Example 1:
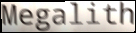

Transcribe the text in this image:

Megalith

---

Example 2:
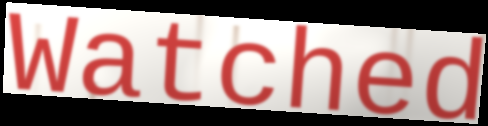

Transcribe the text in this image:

Watched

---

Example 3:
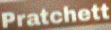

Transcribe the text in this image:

Pratchett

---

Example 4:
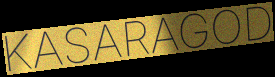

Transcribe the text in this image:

KASARAGOD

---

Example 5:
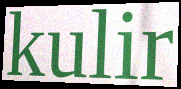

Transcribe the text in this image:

kulir